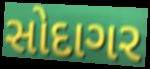
સોદાગર